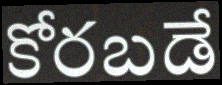
కోరబడే